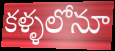
కళ్ళలోనూ